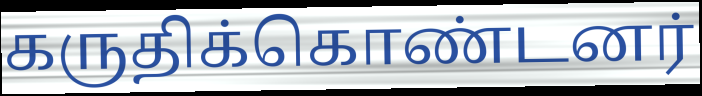
கருதிக்கொண்டனர்